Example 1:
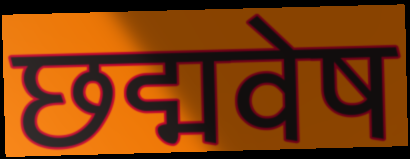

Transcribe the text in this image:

छद्मवेष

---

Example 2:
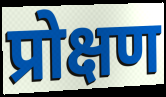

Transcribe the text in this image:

प्रोक्षण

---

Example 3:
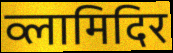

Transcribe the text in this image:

व्लामिदिर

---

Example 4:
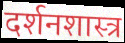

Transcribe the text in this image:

दर्शनशास्त्र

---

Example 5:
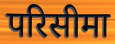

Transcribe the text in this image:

परिसीमा